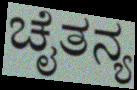
ಚೈತನ್ಯ